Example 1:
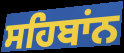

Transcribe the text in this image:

ਸਹਿਬਾਂਨ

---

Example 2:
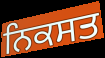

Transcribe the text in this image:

ਨਿਕਸਤ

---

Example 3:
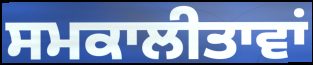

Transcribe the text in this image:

ਸਮਕਾਲੀਤਾਵਾਂ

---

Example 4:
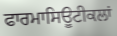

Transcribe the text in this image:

ਫਾਰਮਾਸਿਊਟੀਕਲਾਂ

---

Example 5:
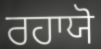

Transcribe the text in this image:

ਰਹਾਯੋ